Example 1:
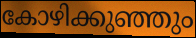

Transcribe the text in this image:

കോഴിക്കുഞ്ഞും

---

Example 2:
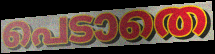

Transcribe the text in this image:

പെടാതെ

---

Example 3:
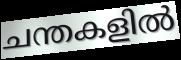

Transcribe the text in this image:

ചന്തകളിൽ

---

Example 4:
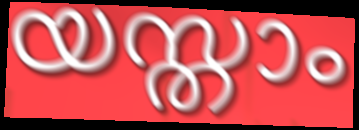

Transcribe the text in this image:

യസ്താം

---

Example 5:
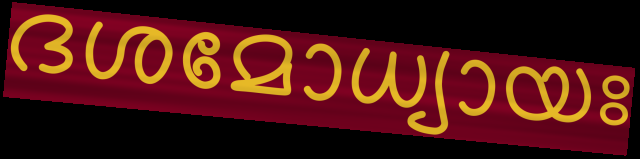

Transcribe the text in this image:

ദശമോധ്യായഃ